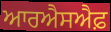
ਆਰਐਸਐਫ਼